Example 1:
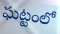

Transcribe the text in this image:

ఘట్టంలో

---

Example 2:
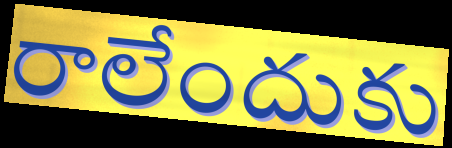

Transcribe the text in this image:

రాలేందుకు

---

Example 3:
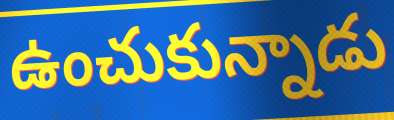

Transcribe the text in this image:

ఉంచుకున్నాడు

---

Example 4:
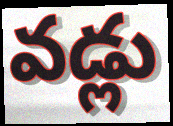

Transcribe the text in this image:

వడ్లు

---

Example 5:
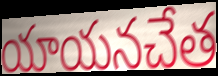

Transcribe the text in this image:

యాయనచేత